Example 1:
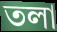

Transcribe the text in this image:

তলা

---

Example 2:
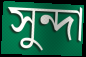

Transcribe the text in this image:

সুন্দা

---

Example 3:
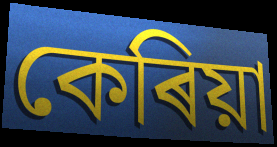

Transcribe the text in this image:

কেৰিয়া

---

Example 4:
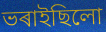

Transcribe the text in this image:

ভৰাইছিলো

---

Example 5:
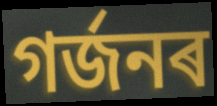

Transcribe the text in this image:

গৰ্জনৰ